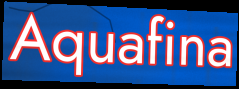
Aquafina